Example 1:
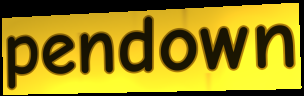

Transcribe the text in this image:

pendown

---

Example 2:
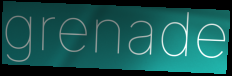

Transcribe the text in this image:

grenade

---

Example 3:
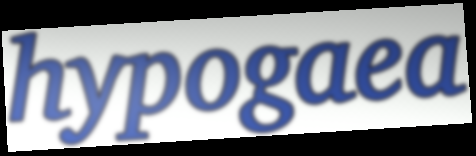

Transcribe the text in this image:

hypogaea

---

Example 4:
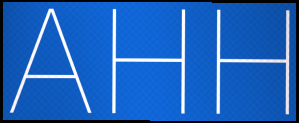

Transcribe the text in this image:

AHH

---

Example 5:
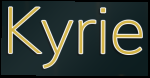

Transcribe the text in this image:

Kyrie